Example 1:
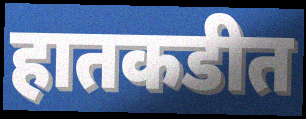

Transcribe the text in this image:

हातकडीत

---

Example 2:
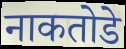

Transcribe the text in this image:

नाकतोडे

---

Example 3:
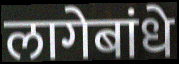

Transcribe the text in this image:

लागेबांधे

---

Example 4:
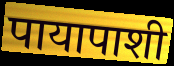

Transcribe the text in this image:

पायापाशी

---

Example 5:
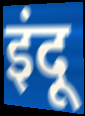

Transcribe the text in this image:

इंदू